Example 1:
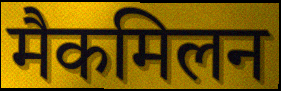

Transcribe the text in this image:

मैकमिलन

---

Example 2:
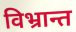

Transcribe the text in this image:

विभ्रान्त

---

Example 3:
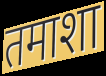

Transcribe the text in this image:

तमाशा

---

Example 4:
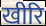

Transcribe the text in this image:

खीरि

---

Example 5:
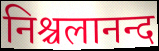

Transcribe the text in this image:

निश्चलानन्द